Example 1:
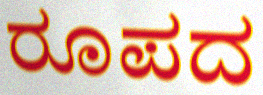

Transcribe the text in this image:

ರೂಪದ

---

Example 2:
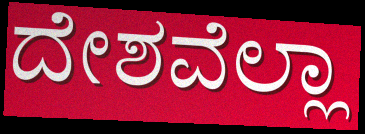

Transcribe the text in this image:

ದೇಶವೆಲ್ಲಾ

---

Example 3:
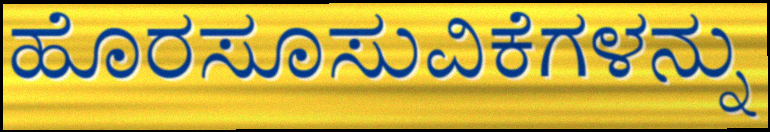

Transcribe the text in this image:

ಹೊರಸೂಸುವಿಕೆಗಳನ್ನು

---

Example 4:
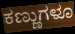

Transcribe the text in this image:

ಕಣ್ಣುಗಳೂ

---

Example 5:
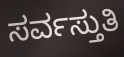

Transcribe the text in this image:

ಸರ್ವಸ್ತುತಿ